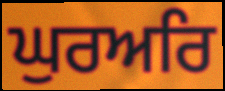
ਘੁਰਅਰਿ